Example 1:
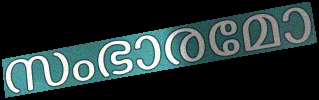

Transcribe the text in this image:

സംഭാരമോ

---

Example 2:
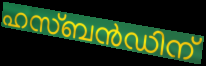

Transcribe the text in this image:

ഹസ്ബൻഡിന്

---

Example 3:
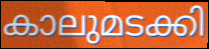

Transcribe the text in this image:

കാലുമടക്കി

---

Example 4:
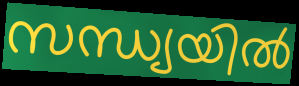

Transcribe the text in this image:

സന്ധ്യയിൽ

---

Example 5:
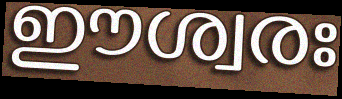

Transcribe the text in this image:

ഈശ്വരഃ